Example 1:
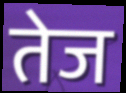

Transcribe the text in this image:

तेज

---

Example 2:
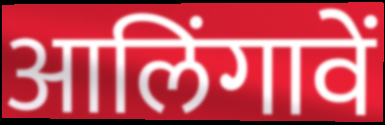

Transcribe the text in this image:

आलिंगावें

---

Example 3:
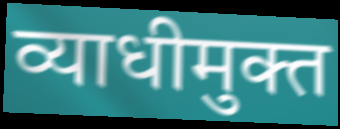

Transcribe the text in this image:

व्याधीमुक्त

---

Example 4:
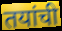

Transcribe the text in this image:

तयांची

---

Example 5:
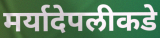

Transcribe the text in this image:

मर्यादेपलीकडे